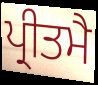
ਪ੍ਰੀਤਮੈ